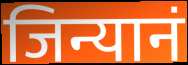
जिन्यानं